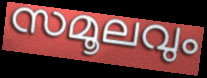
സമൂലവും